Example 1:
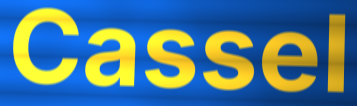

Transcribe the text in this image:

Cassel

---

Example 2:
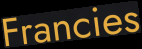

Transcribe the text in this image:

Francies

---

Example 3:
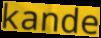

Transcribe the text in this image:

kande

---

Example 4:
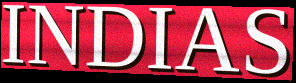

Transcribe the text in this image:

INDIAS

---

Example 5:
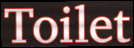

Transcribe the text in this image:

Toilet